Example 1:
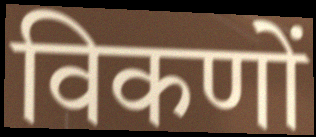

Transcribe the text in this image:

विकणों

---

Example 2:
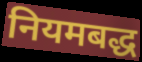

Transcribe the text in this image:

नियमबद्ध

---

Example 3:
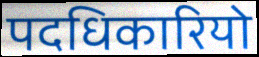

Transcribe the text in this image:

पदधिकारियो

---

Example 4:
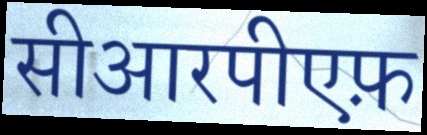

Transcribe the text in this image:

सीआरपीएफ़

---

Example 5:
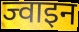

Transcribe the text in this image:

ज्‍वाइन